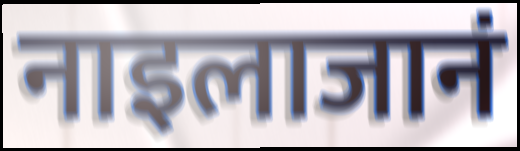
नाइलाजानं